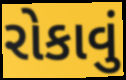
રોકાવું